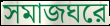
সমাজঘরে